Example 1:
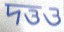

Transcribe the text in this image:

দত্তও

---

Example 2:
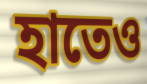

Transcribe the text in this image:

হাতেও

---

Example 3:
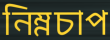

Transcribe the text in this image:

নিম্নচাপ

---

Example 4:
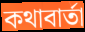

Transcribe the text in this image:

কথাবার্তা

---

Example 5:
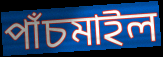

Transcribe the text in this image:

পাঁচমাইল